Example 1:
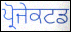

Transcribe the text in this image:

ਪ੍ਰੋਜੇਕਟਡ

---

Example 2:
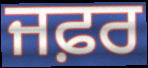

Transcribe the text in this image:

ਜਫ਼ਰ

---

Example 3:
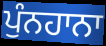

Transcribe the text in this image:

ਪੁੰਨਹਾਨਾ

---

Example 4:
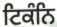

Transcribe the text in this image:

ਟਿਕੰਨਿ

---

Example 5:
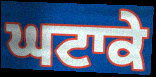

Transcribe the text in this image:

ਘਟਾਕੇ